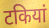
टकियां